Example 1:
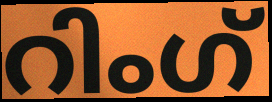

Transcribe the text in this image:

റിംഗ്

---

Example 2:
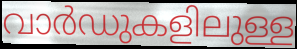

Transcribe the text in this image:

വാർഡുകളിലുള്ള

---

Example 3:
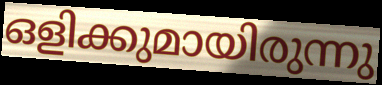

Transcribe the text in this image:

ഒളിക്കുമായിരുന്നു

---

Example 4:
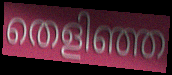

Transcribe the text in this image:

തെളിഞ്ഞ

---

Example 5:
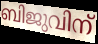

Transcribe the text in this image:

ബിജുവിന്